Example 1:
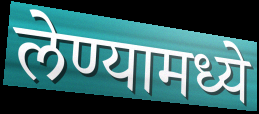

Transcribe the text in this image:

लेण्यामध्ये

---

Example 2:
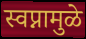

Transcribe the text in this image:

स्वप्नामुळे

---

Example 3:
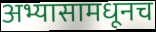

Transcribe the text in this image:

अभ्यासामधूनच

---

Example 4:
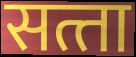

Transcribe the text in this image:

सत्‍ता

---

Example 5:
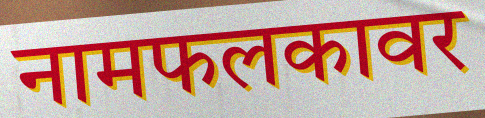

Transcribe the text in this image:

नामफलकावर